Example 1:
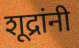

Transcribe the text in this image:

शूद्रांनी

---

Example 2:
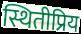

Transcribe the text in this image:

स्थितीप्रिय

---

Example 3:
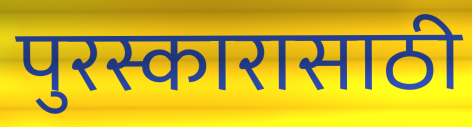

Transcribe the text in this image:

पुरस्कारासाठी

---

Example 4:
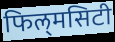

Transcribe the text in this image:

फिल्मसिटी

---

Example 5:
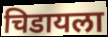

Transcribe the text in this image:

चिडायला